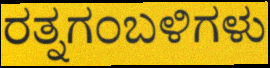
ರತ್ನಗಂಬಳಿಗಳು